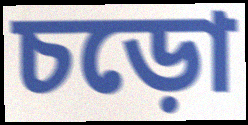
চড়ো